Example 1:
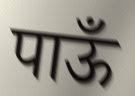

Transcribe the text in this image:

पाऊँ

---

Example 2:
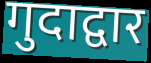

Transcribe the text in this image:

गुदाद्वार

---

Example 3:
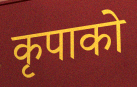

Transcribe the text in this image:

कृपाको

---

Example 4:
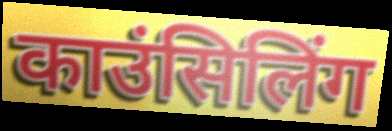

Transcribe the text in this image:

काउंसिलिंग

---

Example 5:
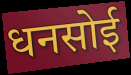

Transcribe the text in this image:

धनसोई